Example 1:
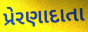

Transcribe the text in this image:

પ્રેરણાદાતા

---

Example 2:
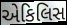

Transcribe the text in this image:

એકિલિસ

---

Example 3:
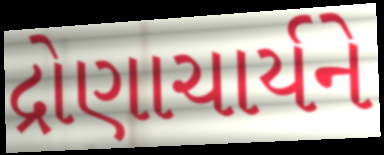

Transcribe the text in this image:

દ્રોણાચાર્યને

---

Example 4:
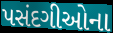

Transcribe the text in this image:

પસંદગીઓના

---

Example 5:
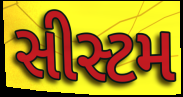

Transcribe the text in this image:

સીસ્ટમ